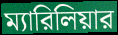
ম্যারিলিয়ার